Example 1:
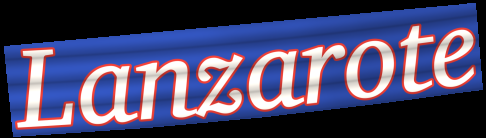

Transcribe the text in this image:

Lanzarote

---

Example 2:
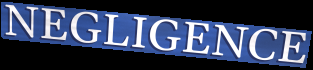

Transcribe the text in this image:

NEGLIGENCE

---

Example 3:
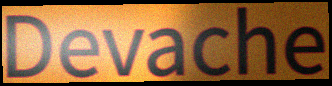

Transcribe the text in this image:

Devache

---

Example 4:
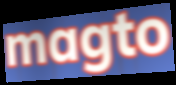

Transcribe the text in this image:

magto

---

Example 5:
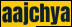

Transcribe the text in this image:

aajchya